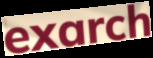
exarch